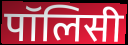
पॉलिसी